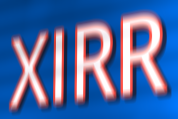
XIRR